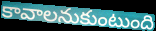
కావాలనుకుంటుంది